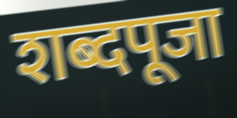
शब्दपूजा